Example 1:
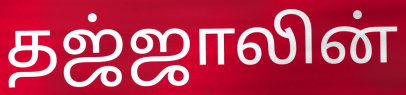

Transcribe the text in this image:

தஜ்ஜாலின்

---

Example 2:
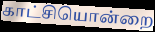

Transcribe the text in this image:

காட்சியொன்றை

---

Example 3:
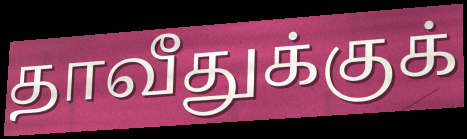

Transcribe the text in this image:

தாவீதுக்குக்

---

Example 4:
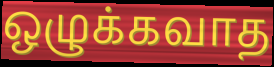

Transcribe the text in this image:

ஒழுக்கவாத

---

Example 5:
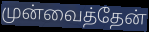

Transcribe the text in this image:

முன்வைத்தேன்